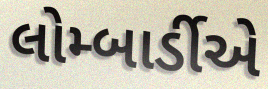
લોમ્બાર્ડીએ